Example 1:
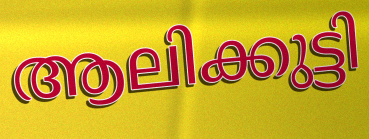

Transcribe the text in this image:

ആലിക്കുട്ടി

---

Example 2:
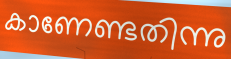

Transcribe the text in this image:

കാണേണ്ടതിന്നു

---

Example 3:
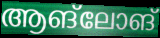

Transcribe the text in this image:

ആങ്‌ലോങ്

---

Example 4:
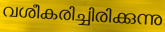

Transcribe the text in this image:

വശീകരിച്ചിരിക്കുന്നു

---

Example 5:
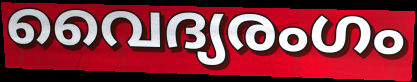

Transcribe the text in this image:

വൈദ്യരംഗം